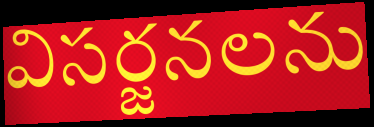
విసర్జనలను